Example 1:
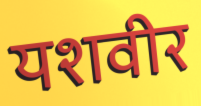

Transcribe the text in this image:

यशवीर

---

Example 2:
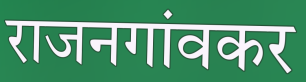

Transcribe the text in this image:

राजनगांवकर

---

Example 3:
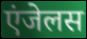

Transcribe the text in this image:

एंजेलस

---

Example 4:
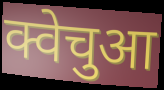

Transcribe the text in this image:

क्वेचुआ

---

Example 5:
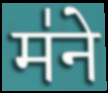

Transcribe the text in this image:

म॑ने